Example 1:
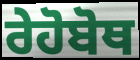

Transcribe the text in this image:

ਰੇਹੋਬੋਥ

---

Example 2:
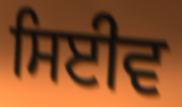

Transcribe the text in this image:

ਸਿਈਵ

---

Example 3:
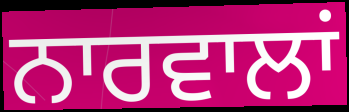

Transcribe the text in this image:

ਨਾਰਵਾਲਾਂ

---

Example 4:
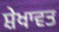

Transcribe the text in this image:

ਸ਼ੇਖਾਵਤ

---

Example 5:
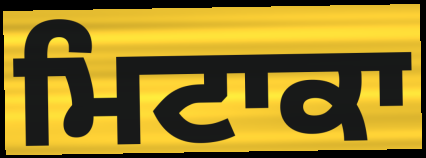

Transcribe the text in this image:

ਮਿਟਾਕਾ